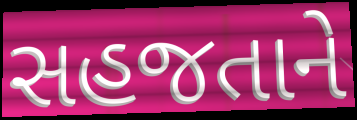
સહજતાને